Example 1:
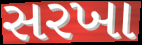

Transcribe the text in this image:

સરખા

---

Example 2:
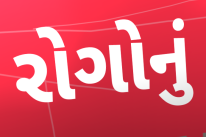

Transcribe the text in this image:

રોગોનું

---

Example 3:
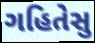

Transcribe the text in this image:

ગહિતેસુ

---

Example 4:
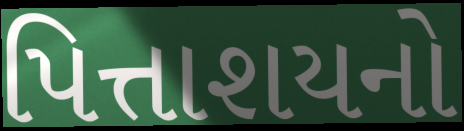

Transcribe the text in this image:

પિત્તાશયનો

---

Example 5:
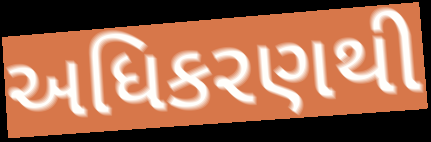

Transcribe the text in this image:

અધિકરણથી